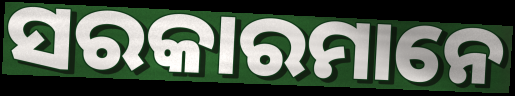
ସରକାରମାନେ